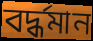
বর্দ্ধমান